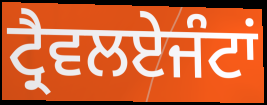
ਟ੍ਰੈਵਲਏਜੰਟਾਂ